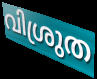
വിശ്രുത